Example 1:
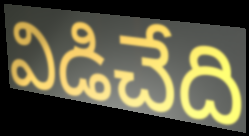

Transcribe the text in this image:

విడిచేది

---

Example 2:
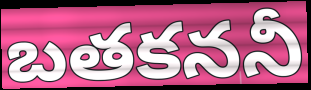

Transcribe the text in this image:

బతకననీ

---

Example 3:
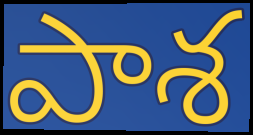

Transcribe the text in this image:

పాశ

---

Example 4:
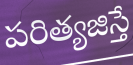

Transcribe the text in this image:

పరిత్యజిస్తే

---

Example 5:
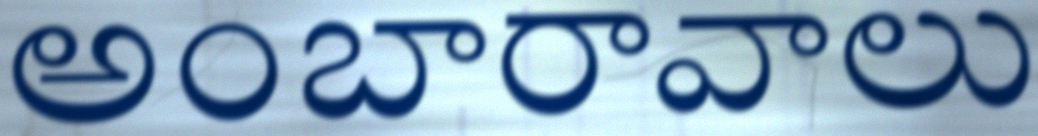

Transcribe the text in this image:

అంబారావాలు